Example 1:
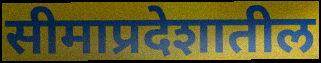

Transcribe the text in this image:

सीमाप्रदेशातील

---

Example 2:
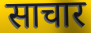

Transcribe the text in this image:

साचार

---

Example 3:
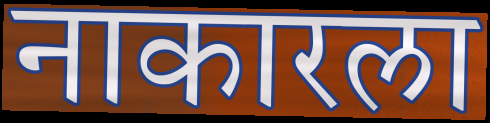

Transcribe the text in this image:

नाकारला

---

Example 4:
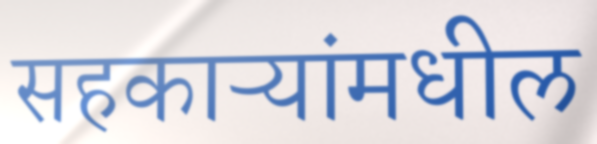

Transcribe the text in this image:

सहकाऱ्यांमधील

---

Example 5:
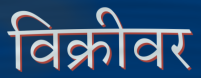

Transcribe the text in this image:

विक्रीवर